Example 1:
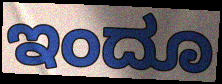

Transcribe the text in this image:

ಇಂದೂ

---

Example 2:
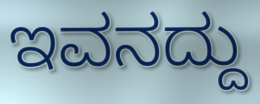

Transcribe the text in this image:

ಇವನದ್ದು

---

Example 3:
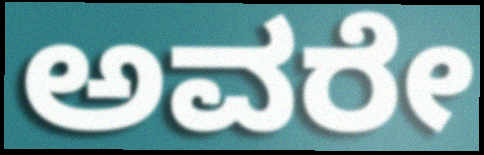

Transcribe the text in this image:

ಅವರೇ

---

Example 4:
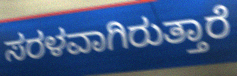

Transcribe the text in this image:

ಸರಳವಾಗಿರುತ್ತಾರೆ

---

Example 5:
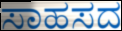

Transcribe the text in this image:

ಸಾಹಸದ